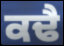
ਕਢੈ